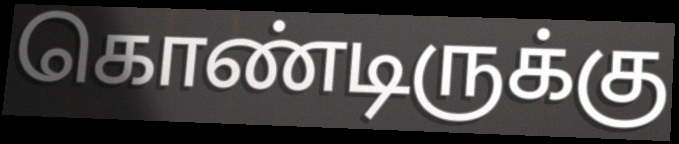
கொண்டிருக்கு